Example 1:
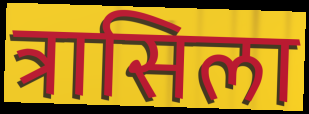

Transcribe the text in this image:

त्रासिला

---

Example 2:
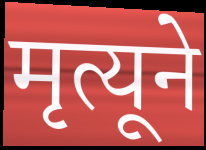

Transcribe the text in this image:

मृत्यूने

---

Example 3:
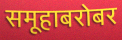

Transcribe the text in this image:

समूहाबरोबर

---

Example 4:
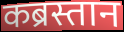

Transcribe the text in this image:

कब्रस्तान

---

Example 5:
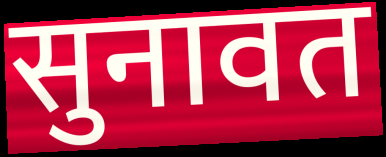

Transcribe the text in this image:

सुनावत